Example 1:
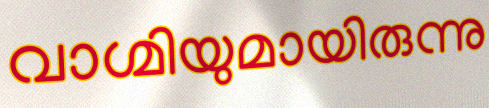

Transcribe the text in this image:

വാഗ്മിയുമായിരുന്നു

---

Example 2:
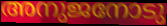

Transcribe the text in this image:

അനുജനോടു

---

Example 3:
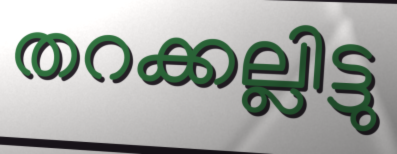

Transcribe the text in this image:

തറക്കല്ലിട്ടു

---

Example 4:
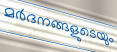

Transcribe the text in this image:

മർദനങ്ങളുടെയും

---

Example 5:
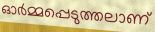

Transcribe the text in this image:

ഓർമ്മപ്പെടുത്തലാണ്